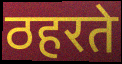
ठहरते